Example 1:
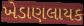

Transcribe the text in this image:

ખેડાણલાયક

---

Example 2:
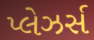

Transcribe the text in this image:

પ્લેઝર્સ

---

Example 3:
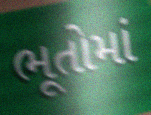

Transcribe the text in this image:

ભૂતોમાં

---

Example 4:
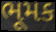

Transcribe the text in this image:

ભૂમક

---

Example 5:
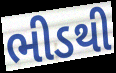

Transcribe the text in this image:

ભીડથી